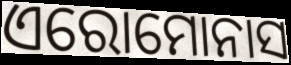
ଏରୋମୋନାସ